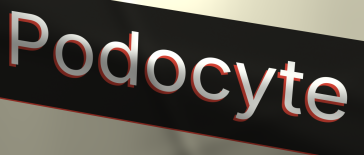
Podocyte